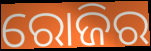
ରୋଜିର